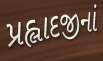
પ્રહ્લાદજીનાં